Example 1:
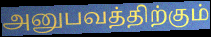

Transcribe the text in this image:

அனுபவத்திற்கும்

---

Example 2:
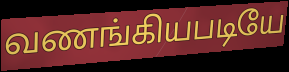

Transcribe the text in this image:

வணங்கியபடியே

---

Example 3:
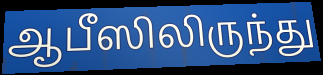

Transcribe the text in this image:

ஆபீஸிலிருந்து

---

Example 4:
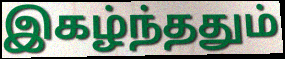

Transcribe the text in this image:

இகழ்ந்ததும்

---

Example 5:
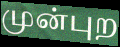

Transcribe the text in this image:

முன்புற